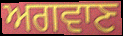
ਅਗਵਾਣ